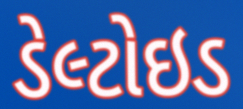
ડેલ્ટોઇડ